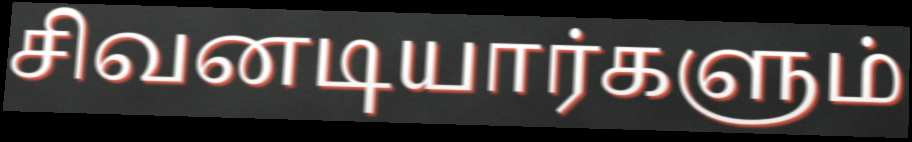
சிவனடியார்களும்